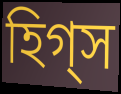
হিগ্স